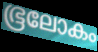
ഭൂലോകം